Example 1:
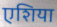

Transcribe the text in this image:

एशिया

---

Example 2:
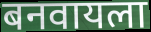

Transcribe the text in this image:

बनवायला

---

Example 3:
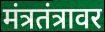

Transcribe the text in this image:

मंत्रतंत्रावर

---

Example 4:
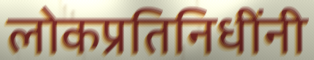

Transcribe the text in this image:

लोकप्रतिनिधींनी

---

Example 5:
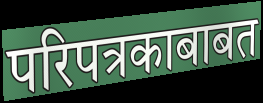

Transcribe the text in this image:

परिपत्रकाबाबत